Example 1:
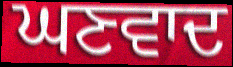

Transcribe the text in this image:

ਘਣਵਾਦ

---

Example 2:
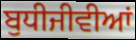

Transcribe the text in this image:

ਬੁਧੀਜੀਵੀਆਂ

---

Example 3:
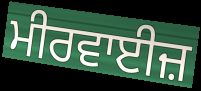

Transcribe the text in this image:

ਮੀਰਵਾਈਜ਼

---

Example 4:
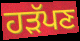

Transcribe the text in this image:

ਹੜੱਪਣ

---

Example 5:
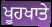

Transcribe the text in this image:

ਖੂਹਖਾਤੇ